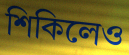
শিকিলেও